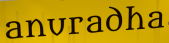
anuradha